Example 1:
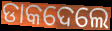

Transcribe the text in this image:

ଡାକଦେଲେ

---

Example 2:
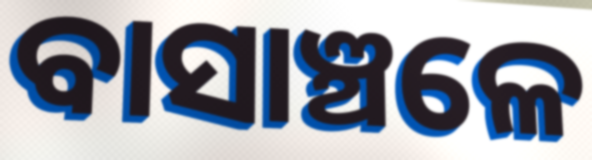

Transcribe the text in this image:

ବାସାଞ୍ଚଳେ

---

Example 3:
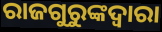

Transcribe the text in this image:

ରାଜଗୁରୁଙ୍କଦ୍ୱାରା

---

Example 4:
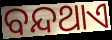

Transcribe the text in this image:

ବନ୍ଦଥାଏ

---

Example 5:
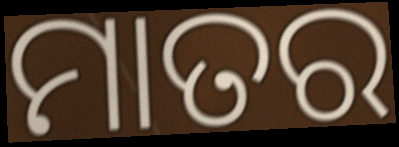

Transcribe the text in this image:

ମାତର